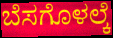
ಬೆಸಗೊಳಲ್ಕೆ